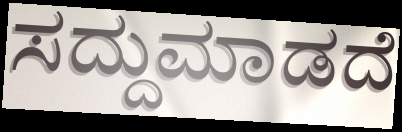
ಸದ್ದುಮಾಡದೆ